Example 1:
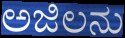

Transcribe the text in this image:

ಅಜಿಲನು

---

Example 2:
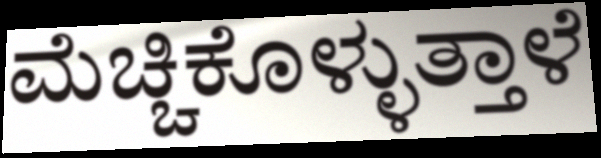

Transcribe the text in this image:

ಮೆಚ್ಚಿಕೊಳ್ಳುತ್ತಾಳೆ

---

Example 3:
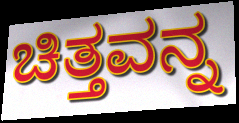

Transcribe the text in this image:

ಚಿತ್ತವನ್ನ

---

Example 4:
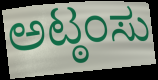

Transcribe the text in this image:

ಅಟ್ಠಂಸು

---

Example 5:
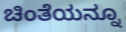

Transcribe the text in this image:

ಚಿಂತೆಯನ್ನೂ